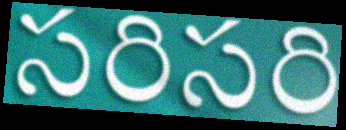
సరిసరి